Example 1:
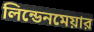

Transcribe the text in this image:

লিন্ডেনমেয়ার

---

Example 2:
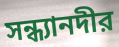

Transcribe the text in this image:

সন্ধ্যানদীর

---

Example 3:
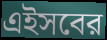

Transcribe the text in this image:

এইসবের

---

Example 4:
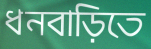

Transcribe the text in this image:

ধনবাড়িতে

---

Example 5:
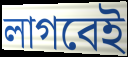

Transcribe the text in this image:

লাগবেই